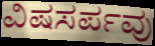
ವಿಷಸರ್ಪವು